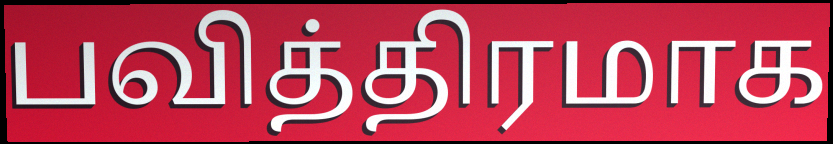
பவித்திரமாக